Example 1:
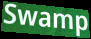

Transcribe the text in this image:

Swamp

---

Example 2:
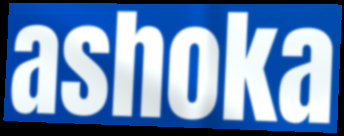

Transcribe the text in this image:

ashoka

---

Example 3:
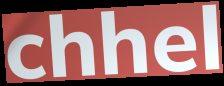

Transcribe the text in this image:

chhel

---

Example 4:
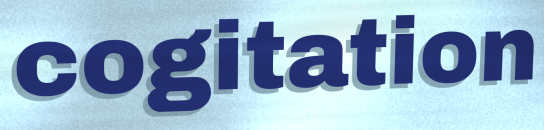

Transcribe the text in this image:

cogitation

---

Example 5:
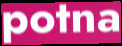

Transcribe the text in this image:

potna